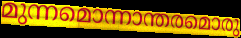
മുന്നമൊന്നാന്തരമൊരു